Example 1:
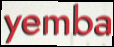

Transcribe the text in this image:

yemba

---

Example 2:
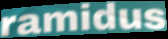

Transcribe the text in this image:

ramidus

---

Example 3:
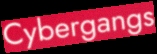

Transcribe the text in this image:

Cybergangs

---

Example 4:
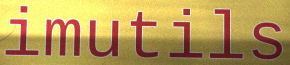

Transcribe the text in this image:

imutils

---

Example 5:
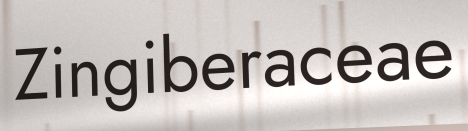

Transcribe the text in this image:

Zingiberaceae